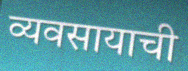
व्यवसायाची